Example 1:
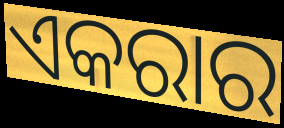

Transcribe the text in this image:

ଏକରାର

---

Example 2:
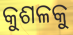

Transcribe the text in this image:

କୁଶଳକୁ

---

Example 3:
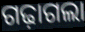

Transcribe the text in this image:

ଗଢ଼ାଗଲା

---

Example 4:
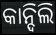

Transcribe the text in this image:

କାନ୍ଦିଲି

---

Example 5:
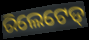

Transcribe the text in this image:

ରିଲେଟେଡ୍